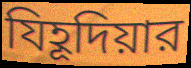
যিহূদিয়ার